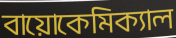
বায়োকেমিক্যাল